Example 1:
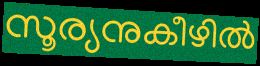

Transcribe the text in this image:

സൂര്യനുകീഴിൽ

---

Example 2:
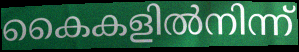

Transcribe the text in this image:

കൈകളിൽനിന്ന്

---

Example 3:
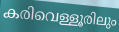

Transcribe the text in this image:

കരിവെള്ളൂരിലും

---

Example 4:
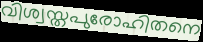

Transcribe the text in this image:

വിശ്വസ്തപുരോഹിതനെ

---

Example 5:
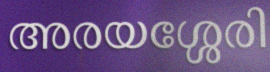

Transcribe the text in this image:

അരയശ്ശേരി